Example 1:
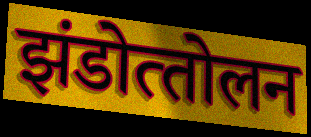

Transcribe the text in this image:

झंडोत्‍तोलन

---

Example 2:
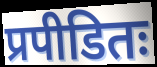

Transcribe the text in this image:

प्रपीडितः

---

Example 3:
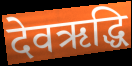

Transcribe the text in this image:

देवऋद्धि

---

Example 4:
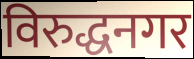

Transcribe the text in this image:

विरुद्धनगर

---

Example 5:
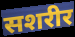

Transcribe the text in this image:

सशरीर